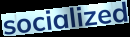
socialized